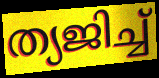
ത്യജിച്ച്